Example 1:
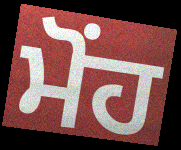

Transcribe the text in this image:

ਮੋਂਹ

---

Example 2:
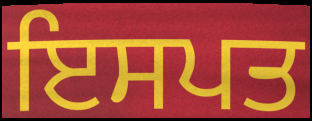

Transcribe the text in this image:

ਇਸਪਤ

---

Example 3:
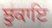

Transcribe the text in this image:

ਝੁਕਾਇ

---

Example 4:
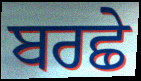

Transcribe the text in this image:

ਬਰਛੇ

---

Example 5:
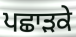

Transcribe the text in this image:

ਪਛਾੜਕੇ